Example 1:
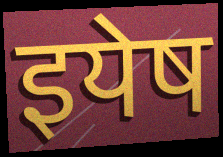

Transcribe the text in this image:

इयेष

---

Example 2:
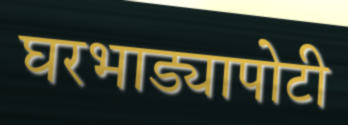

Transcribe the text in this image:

घरभाड्यापोटी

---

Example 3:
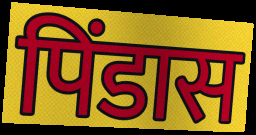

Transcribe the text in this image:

पिंडास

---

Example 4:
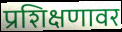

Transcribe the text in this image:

प्रशिक्षणावर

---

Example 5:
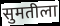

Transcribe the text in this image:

सुमतीला